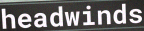
headwinds